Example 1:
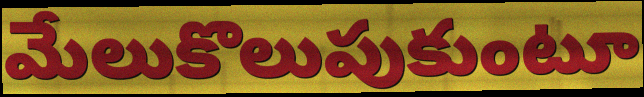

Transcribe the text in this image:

మేలుకొలుపుకుంటూ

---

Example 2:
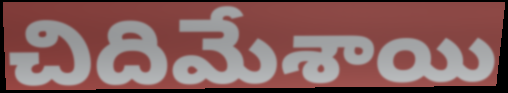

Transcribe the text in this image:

చిదిమేశాయి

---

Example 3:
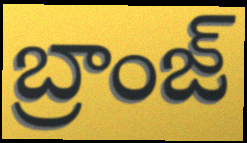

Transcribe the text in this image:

బ్రాంజ్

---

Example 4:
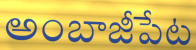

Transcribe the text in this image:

అంబాజీపేట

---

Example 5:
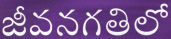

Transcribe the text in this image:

జీవనగతిలో